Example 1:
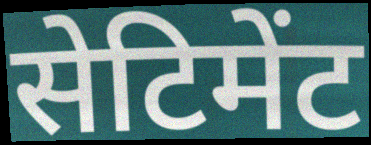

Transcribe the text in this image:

सेटिमेंट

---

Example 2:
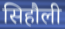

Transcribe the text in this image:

सिहौली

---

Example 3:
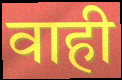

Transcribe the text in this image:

वाही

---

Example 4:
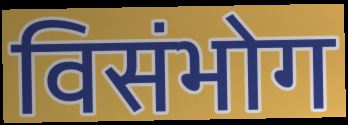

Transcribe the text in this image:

विसंभोग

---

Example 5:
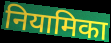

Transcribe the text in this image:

नियामिका